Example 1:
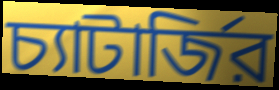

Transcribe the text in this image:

চ্যাটার্জির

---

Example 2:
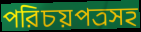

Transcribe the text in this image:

পরিচয়পত্রসহ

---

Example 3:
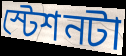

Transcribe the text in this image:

স্টেশনটা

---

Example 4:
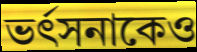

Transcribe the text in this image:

ভর্ৎসনাকেও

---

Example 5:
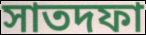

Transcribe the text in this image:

সাতদফা